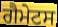
ਗੈਮੇਟਸ